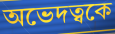
অভেদত্বকে